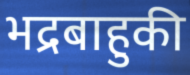
भद्रबाहुकी